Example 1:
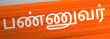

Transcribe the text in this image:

பண்ணுவர்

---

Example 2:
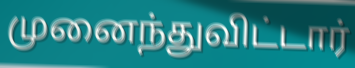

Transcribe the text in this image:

முனைந்துவிட்டார்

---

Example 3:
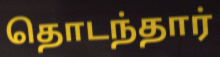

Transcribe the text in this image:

தொடந்தார்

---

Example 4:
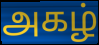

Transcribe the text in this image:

அகழ்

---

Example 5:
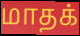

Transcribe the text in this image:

மாதக்